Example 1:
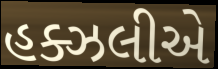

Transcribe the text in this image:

હક્ઝલીએ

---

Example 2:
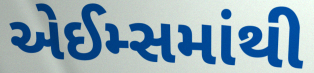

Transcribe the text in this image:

એઈમ્સમાંથી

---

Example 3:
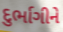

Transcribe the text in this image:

દુર્ભાગીને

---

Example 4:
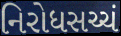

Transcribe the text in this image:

નિરોધસચ્ચં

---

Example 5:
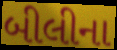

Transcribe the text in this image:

બીલીના